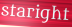
staright